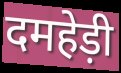
दमहेड़ी